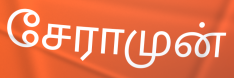
சேராமுன்